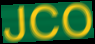
JCO